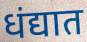
धंद्यात